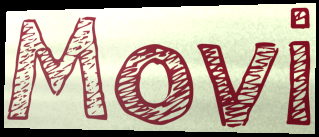
Movi